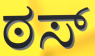
ಠಸ್